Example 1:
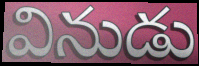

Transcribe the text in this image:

వినుడు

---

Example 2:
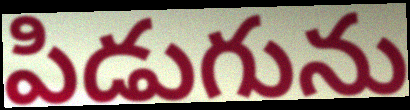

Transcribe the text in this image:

పిడుగును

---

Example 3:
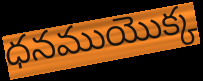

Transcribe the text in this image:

ధనముయొక్క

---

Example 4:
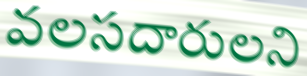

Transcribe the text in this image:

వలసదారులని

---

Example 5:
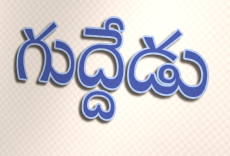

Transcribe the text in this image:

గుద్దేడు